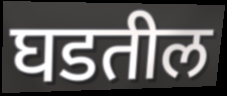
घडतील